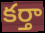
కర్తా